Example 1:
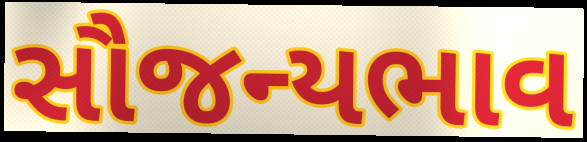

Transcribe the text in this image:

સૌજન્યભાવ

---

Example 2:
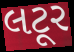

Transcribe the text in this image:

લટૂર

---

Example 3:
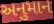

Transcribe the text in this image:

અનુમાન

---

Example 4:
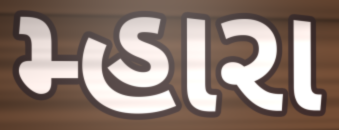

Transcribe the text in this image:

મ્હારા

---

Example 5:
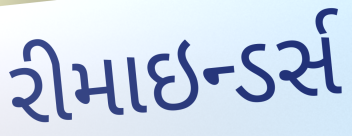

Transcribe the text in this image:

રીમાઇન્ડર્સ